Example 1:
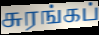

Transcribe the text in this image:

சுரங்கப்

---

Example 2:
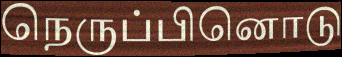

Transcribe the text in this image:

நெருப்பினொடு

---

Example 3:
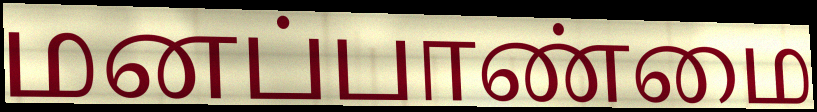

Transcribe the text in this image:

மனப்பாண்மை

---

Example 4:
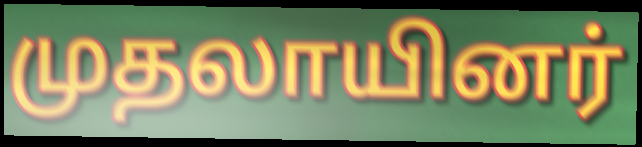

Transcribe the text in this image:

முதலாயினர்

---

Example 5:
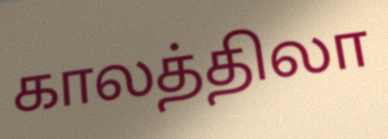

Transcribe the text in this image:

காலத்திலா